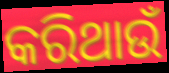
କରିଥାଉଁ